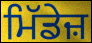
ਮਿੱਡੇਜ਼